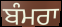
ਬੰਮਰਾ